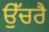
ਉੱਚਰੈ